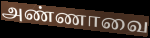
அண்ணாவை